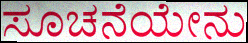
ಸೂಚನೆಯೇನು